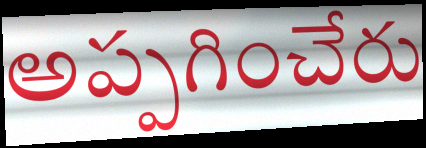
అప్పగించేరు